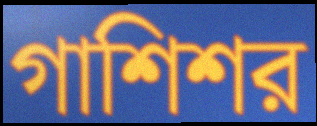
গাশিশর